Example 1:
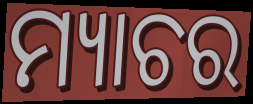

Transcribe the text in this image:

ମ୍ୟାଚର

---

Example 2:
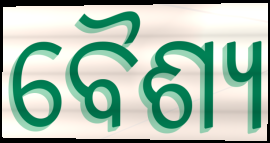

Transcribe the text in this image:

ବୈଶ୍ୟ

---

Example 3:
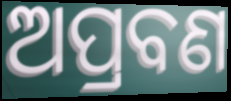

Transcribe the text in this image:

ଅପ୍ରବଣ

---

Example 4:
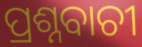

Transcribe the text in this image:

ପ୍ରଶ୍ନବାଚୀ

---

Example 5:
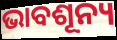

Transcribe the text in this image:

ଭାବଶୂନ୍ୟ